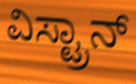
ವಿಸ್ಟ್ರಾನ್